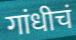
गांधीचं